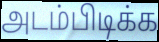
அடம்பிடிக்க